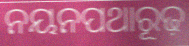
ନୟନପଥାରୂଢ଼